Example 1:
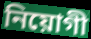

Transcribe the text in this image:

নিয়োগী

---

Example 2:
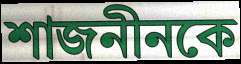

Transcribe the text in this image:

শাজনীনকে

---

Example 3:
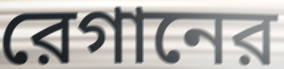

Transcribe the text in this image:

রেগানের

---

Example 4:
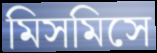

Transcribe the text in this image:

মিসমিসে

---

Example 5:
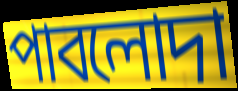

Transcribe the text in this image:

পাবলোদা